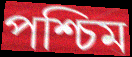
পশ্চিম